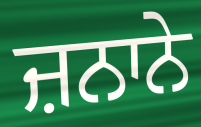
ਜ਼ਨਾਨੇ